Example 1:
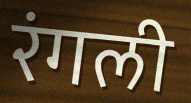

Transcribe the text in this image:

रंगली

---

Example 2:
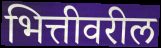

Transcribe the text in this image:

भित्तीवरील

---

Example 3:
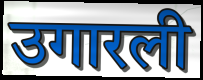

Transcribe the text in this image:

उगारली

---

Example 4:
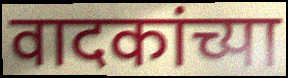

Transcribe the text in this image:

वादकांच्या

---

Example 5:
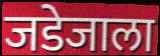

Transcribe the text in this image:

जडेजाला